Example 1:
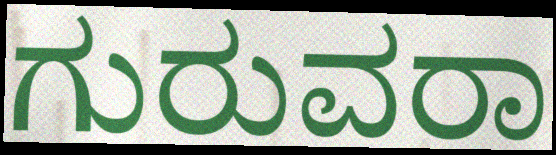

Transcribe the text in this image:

ಗುರುವರಾ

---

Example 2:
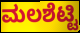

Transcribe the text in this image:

ಮಲಶೆಟ್ಟಿ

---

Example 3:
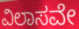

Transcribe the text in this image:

ವಿಲಾಸವೇ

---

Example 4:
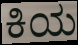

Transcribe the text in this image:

ಕಿಯ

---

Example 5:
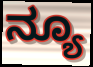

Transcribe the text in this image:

ನ್ಯೂ